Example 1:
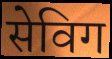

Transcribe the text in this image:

सेविग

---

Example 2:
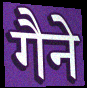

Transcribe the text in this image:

गैने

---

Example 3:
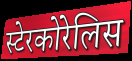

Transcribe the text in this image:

स्टेरकोरेलिस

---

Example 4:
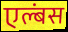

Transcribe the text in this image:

एल्बंस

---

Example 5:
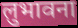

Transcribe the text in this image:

लुभावना